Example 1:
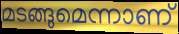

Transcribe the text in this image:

മടങ്ങുമെന്നാണ്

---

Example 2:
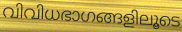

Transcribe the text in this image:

വിവിധഭാഗങ്ങളിലൂടെ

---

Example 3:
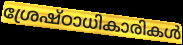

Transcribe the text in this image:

ശ്രേഷ്ഠാധികാരികൾ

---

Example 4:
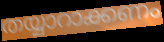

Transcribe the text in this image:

തയ്യാറാക്കണം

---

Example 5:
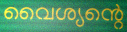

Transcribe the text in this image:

വൈശ്യന്റെ